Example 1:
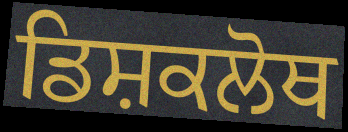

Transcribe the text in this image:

ਡਿਸ਼ਕਲੋਥ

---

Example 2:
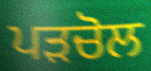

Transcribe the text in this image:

ਪੜਚੋਲ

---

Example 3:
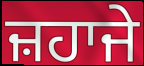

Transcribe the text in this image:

ਜ਼ਹਾਜੇ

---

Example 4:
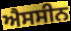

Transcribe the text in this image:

ਐਸਸੀਨ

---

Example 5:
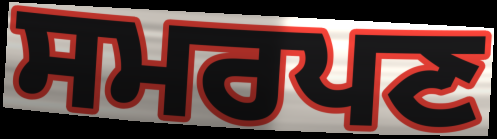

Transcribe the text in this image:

ਸਮਰਪਣ